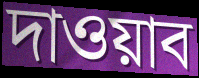
দাওয়াব